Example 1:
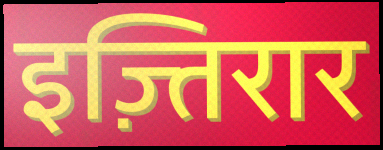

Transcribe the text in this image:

इज़्तिरार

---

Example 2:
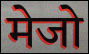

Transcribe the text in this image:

मेजो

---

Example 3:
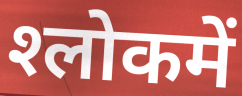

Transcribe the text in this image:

श्‍लोकमें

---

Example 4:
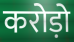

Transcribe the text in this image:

करोड़ो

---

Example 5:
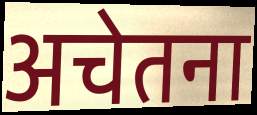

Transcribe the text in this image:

अचेतना